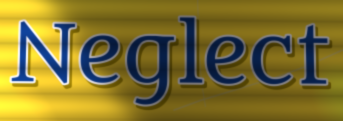
Neglect